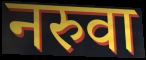
नरुवा